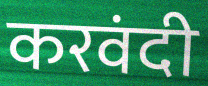
करवंदी